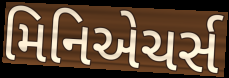
મિનિએચર્સ